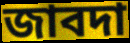
জাবদা